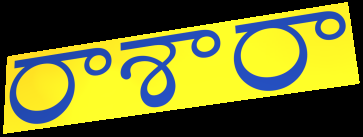
రాశారా